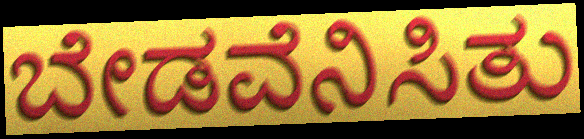
ಬೇಡವೆನಿಸಿತು